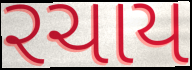
રચાય